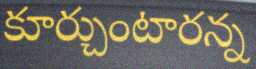
కూర్చుంటారన్న